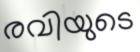
രവിയുടെ